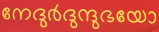
നേദുർദുന്ദുഭയോ